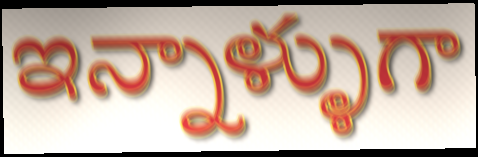
ఇన్నాళ్ళుగా